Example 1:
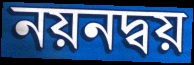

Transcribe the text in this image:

নয়নদ্বয়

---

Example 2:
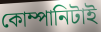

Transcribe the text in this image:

কোম্পানিটাই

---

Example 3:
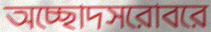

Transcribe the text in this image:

অচ্ছোদসরোবরে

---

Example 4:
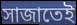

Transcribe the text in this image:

সাজাতেই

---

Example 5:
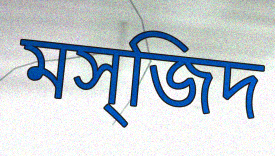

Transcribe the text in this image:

মস্জিদ